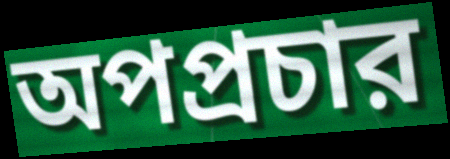
অপপ্রচার